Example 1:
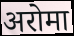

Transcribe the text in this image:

अरोमा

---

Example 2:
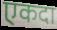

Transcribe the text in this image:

एकदा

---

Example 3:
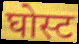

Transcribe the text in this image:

घोस्‍ट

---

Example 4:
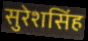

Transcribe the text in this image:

सुरेशसिंह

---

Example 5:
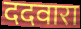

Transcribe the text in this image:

ददवारा